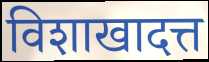
विशाखादत्त